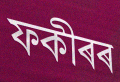
ফকীৰৰ